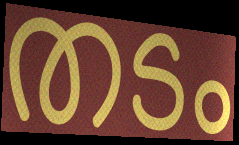
തടം